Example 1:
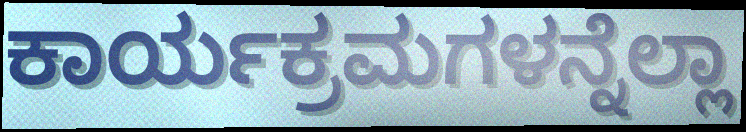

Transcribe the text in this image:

ಕಾರ್ಯಕ್ರಮಗಳನ್ನೆಲ್ಲಾ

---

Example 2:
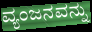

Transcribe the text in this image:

ವ್ಯಂಜನವನ್ನು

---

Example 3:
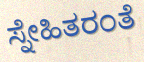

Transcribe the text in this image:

ಸ್ನೇಹಿತರಂತೆ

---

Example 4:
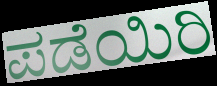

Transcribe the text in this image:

ಪಡೆಯಿರಿ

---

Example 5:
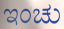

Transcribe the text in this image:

ಇಂಚು